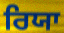
ਰਿਯਾ